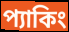
প্যাকিং